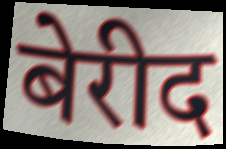
बेरीद